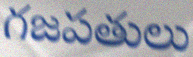
గజపతులు